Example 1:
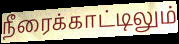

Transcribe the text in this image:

நீரைக்காட்டிலும்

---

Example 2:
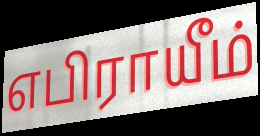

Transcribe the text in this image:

எபிராயீம்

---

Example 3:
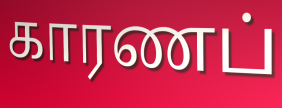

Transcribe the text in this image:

காரணப்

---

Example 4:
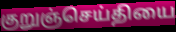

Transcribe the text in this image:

குறுஞ்செய்தியை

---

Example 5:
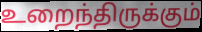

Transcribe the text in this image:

உறைந்திருக்கும்